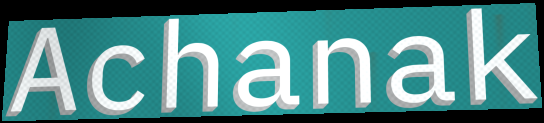
Achanak